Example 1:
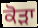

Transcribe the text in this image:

ਕੋੜਾ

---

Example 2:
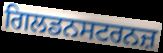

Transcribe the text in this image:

ਗਿਲਡਨਸਟਰਨਜ਼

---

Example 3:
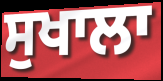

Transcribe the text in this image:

ਸੁਖਾਲਾ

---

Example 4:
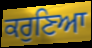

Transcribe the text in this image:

ਕਰੁਣਿਆ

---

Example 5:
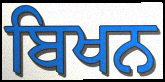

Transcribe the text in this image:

ਬਿਖਨ